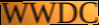
WWDC